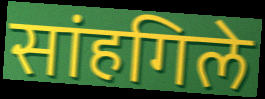
सांहगिले